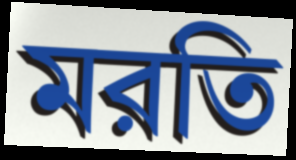
মরতি